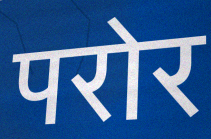
परोर